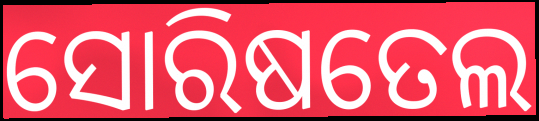
ସୋରିଷତେଲ